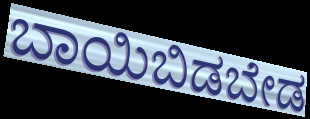
ಬಾಯಿಬಿಡಬೇಡ